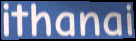
ithanai